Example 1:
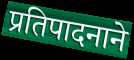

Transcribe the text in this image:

प्रतिपादनाने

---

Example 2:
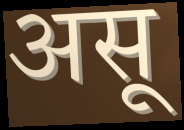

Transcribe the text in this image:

असू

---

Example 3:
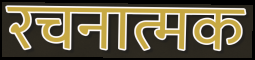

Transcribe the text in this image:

रचनात्मक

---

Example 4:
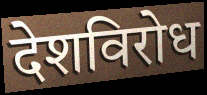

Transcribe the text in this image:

देशविरोध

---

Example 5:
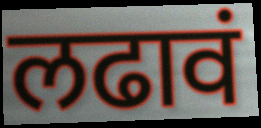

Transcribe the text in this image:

लढावं